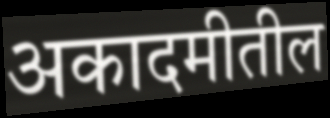
अकादमीतील